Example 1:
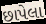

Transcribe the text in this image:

છાપેલા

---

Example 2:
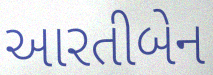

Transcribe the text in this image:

આરતીબેન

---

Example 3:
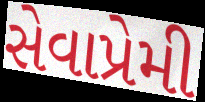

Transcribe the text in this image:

સેવાપ્રેમી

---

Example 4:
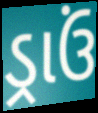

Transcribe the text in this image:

ડ્રાઉં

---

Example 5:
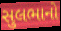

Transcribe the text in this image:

સુલભાનો